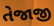
તેજાજી